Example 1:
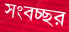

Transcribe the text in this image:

সংবচ্ছর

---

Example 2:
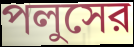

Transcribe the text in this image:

পলুসের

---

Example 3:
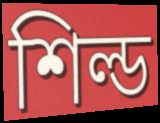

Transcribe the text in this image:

শিল্ড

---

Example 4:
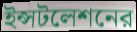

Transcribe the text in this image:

ইন্সটলেশনের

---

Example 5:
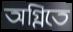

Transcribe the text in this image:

অগ্নিতে